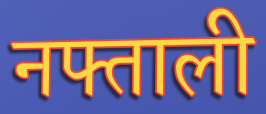
नफ्ताली